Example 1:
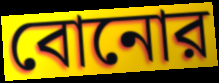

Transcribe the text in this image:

বোনোর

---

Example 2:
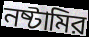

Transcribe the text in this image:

নষ্টামির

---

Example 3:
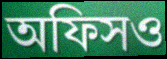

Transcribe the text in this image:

অফিসও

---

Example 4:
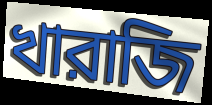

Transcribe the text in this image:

খারাজি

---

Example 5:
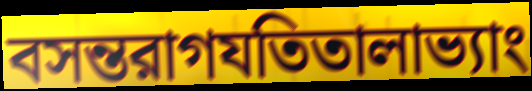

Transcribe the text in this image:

বসন্তরাগযতিতালাভ্যাং